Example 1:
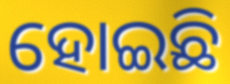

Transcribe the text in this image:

ହୋଇଛି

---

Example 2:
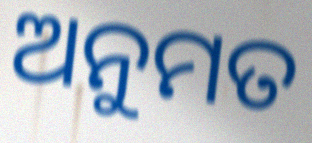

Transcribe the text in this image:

ଅନୁମତ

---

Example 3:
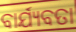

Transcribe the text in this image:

ବାର୍ଯ୍ୟବତା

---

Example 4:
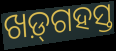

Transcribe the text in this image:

ଖଡ଼୍‌ଗହସ୍ତ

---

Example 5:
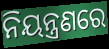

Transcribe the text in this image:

ନିୟନ୍ତ୍ରଣରେ